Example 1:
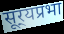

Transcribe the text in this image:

सूर्यप्रभा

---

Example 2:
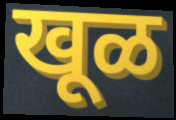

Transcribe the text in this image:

खूळ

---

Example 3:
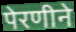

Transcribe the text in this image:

पेरणीने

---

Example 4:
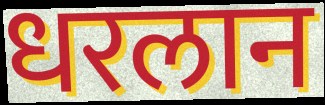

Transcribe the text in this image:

धरलान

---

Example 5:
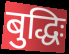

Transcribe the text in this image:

बुद्धिः